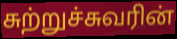
சுற்றுச்சுவரின்